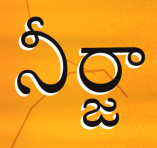
నీర్జా